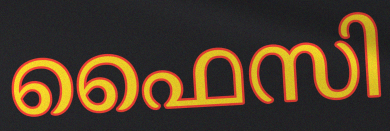
ഫൈസി